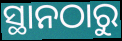
ସ୍ଥାନଠାରୁ